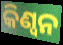
କିଣ୍ୱନ